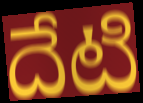
దేటి